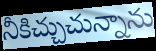
నీకిచ్చుచున్నాను